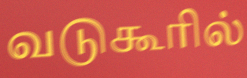
வடுகூரில்